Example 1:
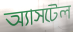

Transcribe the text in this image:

অ্যাসটেল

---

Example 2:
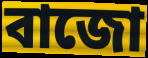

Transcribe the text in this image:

বাজো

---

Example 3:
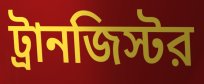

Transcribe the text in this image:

ট্রানজিস্টর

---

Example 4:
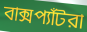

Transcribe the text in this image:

বাক্সপ্যাঁটরা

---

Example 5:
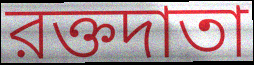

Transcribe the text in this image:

রক্তদাতা